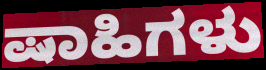
ಷಾಹಿಗಳು